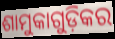
ଶାମୁକାଗୁଡ଼ିକର